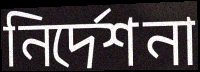
নির্দেশনা